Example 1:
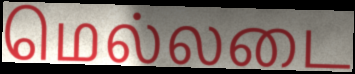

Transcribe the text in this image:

மெல்லடை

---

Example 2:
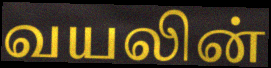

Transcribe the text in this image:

வயலின்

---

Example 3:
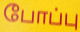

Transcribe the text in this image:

போப்பு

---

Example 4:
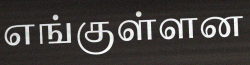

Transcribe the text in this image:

எங்குள்ளன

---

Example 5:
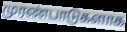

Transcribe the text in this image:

முரண்பாடுகளாக